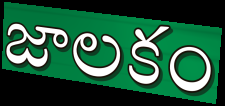
జాలకం